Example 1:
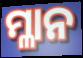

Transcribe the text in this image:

ମ୍ଳାନ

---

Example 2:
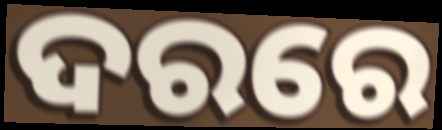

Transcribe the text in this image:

ଦରରେ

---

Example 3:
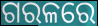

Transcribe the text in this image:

ଗରଳରେ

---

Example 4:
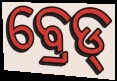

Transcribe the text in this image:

ବ୍ରେଡ୍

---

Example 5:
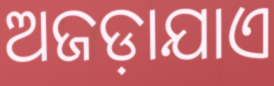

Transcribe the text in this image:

ଅଜଡ଼ାଯାଏ